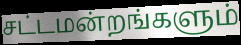
சட்டமன்றங்களும்